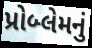
પ્રોબ્લેમનું